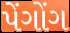
પેંગોંગ